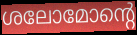
ശലോമോന്റെ